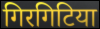
गिरगिटिया